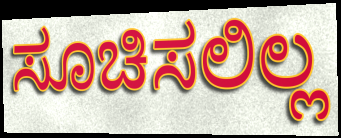
ಸೂಚಿಸಲಿಲ್ಲ